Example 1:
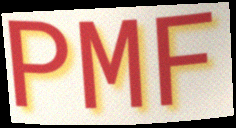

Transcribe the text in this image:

PMF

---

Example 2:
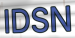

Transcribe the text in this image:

IDSN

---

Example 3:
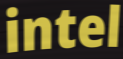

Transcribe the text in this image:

intel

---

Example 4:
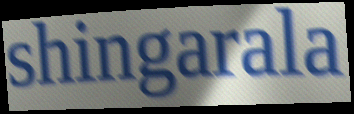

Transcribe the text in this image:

shingarala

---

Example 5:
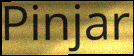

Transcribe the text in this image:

Pinjar